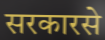
सरकारसे